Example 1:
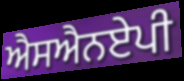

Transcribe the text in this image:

ਐਸਐਨਏਪੀ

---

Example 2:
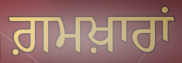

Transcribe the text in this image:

ਗ਼ਮਖ਼ਾਰਾਂ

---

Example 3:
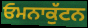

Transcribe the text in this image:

ਓਮਨਾਕੁੱਟਨ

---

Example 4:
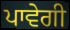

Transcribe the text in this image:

ਪਾਵੇਗੀ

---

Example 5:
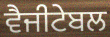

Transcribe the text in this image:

ਵੈਜੀਟੇਬਲ